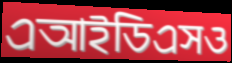
এআইডিএসও